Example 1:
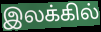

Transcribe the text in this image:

இலக்கில்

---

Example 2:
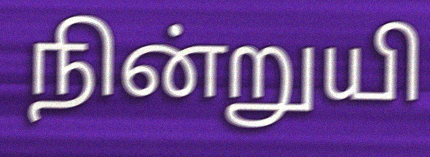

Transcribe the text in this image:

நின்றுயி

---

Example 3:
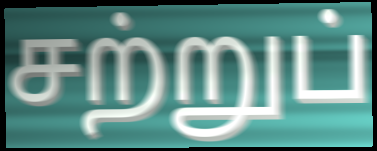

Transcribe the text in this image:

சற்றுப்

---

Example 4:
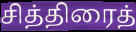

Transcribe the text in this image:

சித்திரைத்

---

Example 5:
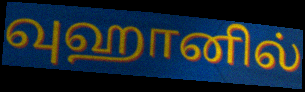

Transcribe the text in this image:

வுஹானில்